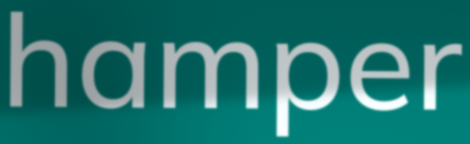
hamper